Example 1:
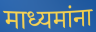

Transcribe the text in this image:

माध्यमांना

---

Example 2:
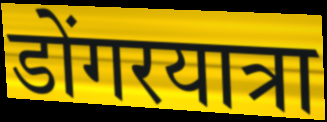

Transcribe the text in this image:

डोंगरयात्रा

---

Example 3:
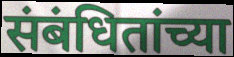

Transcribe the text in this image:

संबंधितांच्या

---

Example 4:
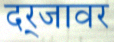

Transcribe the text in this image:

दर्जावर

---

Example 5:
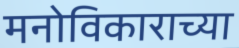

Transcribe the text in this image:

मनोविकाराच्या